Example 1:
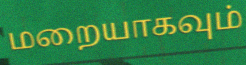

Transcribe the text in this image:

மறையாகவும்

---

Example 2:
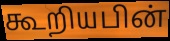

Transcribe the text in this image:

கூறியபின்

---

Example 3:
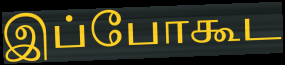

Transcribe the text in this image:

இப்போகூட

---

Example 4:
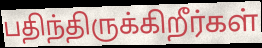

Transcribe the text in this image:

பதிந்திருக்கிறீர்கள்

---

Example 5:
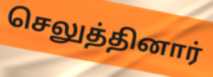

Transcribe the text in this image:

செலுத்தினார்